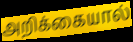
அறிக்கையால்